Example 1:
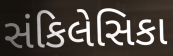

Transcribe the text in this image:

સંકિલેસિકા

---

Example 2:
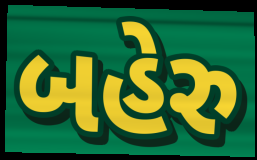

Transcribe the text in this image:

બહેરુ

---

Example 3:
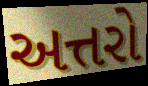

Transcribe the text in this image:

અત્તરો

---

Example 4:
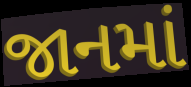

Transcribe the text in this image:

જાનમાં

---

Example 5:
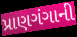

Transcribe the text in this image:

પ્રાણગંગાની